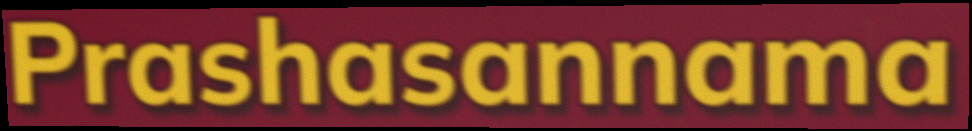
Prashasannama